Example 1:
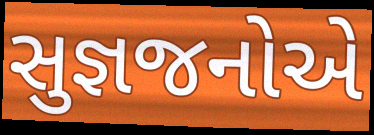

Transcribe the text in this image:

સુજ્ઞજનોએ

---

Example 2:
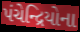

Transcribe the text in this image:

પંચેન્દ્રિયોના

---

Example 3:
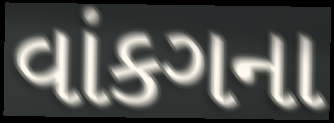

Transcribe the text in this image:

વાંકગના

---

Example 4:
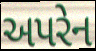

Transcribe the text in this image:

અપરેન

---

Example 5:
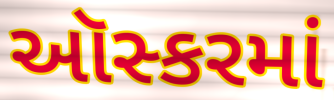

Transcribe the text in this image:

ઑસ્કરમાં